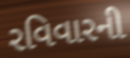
રવિવારની